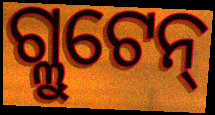
ଗ୍ଲୁଟେନ୍